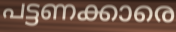
പട്ടണക്കാരെ